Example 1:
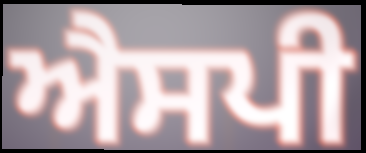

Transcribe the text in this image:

ਐਸਪੀ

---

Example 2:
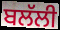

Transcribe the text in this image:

ਬਲੱਲੀ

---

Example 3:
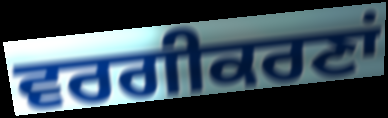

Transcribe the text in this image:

ਵਰਗੀਕਰਣਾਂ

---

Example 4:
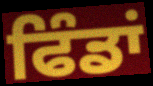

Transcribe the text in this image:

ਫਿੰਡਾਂ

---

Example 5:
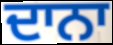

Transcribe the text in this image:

ਦਾਨਾ